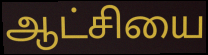
ஆட்சியை